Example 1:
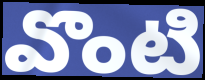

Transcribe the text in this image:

వొంటి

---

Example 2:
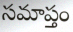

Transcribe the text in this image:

సమాప్తం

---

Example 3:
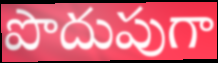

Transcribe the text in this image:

పొదుపుగా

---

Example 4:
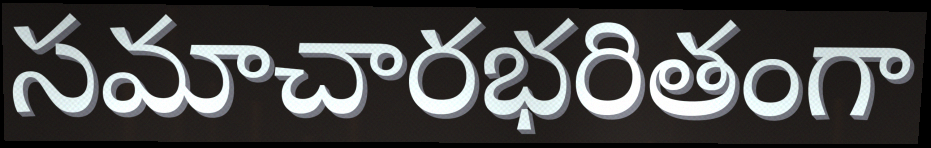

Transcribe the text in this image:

సమాచారభరితంగా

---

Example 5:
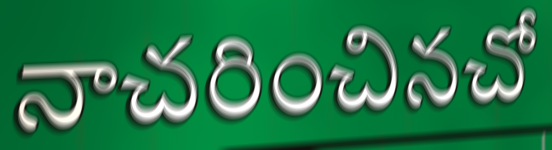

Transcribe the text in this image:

నాచరించినచో